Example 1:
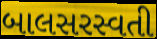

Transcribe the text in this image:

બાલસરસ્વતી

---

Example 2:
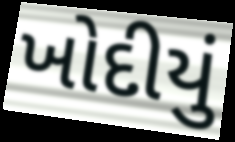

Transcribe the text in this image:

ખોદીયું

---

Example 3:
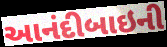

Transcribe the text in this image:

આનંદીબાઇની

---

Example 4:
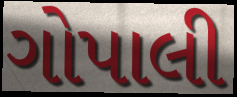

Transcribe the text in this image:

ગોપાલી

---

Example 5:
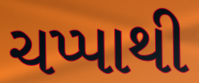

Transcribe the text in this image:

ચપ્પાથી